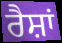
ਰੈਸ਼ਾਂ